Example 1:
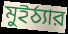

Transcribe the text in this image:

মুইঠ্যার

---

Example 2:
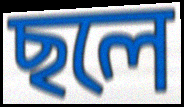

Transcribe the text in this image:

ছলে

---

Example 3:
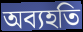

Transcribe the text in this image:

অব্যহতি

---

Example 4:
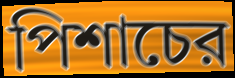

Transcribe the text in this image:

পিশাচের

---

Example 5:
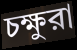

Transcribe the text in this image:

চক্ষুরা